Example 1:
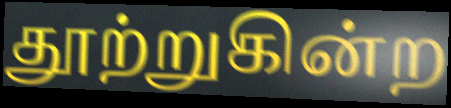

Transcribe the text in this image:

தூற்றுகின்ற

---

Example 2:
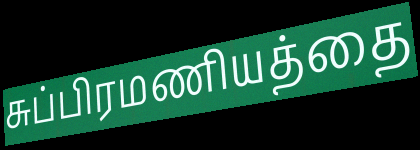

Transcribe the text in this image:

சுப்பிரமணியத்தை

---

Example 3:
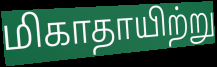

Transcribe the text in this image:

மிகாதாயிற்று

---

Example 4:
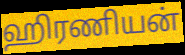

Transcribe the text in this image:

ஹிரணியன்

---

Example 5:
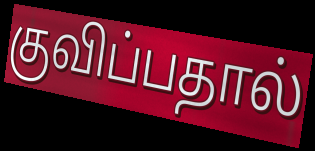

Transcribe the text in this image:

குவிப்பதால்